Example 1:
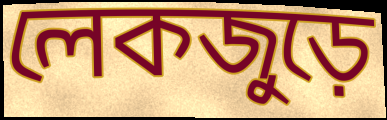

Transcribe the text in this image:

লেকজুড়ে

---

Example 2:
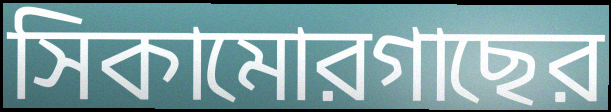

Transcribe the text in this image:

সিকামোরগাছের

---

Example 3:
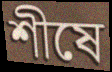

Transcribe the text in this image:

শীষে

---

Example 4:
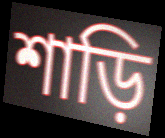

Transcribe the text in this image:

শাড়ি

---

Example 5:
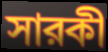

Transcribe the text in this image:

সারকী